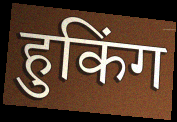
हुकिंग